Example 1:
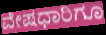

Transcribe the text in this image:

ವೇಷಧಾರಿಗೂ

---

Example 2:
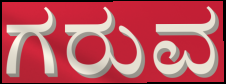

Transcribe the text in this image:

ಗರುವ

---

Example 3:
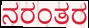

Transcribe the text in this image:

ನರಂತರ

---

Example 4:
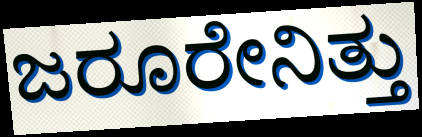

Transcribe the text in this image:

ಜರೂರೇನಿತ್ತು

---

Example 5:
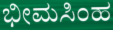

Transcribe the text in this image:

ಭೀಮಸಿಂಹ